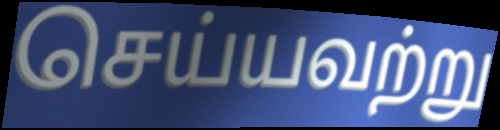
செய்யவற்று